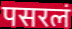
पसरलं